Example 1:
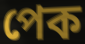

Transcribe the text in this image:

পেক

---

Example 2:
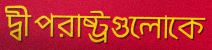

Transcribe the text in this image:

দ্বীপরাষ্ট্রগুলোকে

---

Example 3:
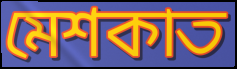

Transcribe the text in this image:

মেশকাত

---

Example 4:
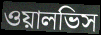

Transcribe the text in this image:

ওয়ালভিস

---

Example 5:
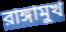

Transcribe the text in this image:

রাঙ্গামুখ